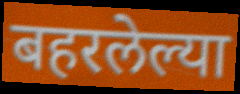
बहरलेल्या